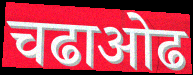
चढाओढ